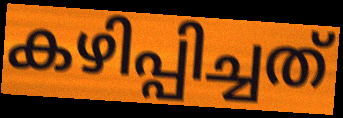
കഴിപ്പിച്ചത്